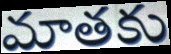
మాతకు